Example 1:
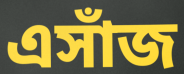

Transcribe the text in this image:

এসাঁজ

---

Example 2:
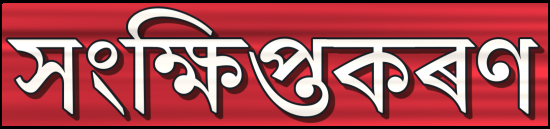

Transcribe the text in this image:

সংক্ষিপ্তকৰণ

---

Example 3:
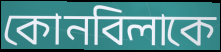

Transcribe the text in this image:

কোনবিলাকে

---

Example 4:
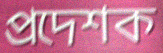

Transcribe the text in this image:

প্ৰদেশক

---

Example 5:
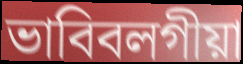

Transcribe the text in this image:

ভাবিবলগীয়া